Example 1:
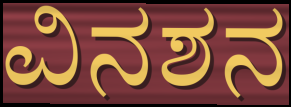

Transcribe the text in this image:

ವಿನಶನ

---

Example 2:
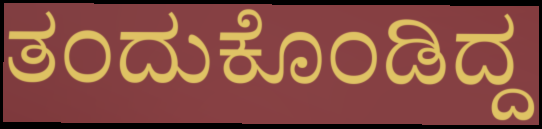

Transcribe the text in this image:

ತಂದುಕೊಂಡಿದ್ದ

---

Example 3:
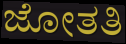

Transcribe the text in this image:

ಜೋತತಿ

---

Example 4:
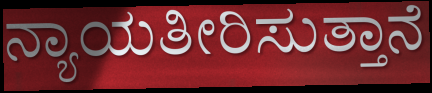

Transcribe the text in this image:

ನ್ಯಾಯತೀರಿಸುತ್ತಾನೆ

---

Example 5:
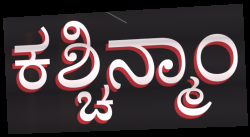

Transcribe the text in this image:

ಕಶ್ಚಿನ್ಮಾಂ